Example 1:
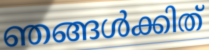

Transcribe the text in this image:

ഞങ്ങൾക്കിത്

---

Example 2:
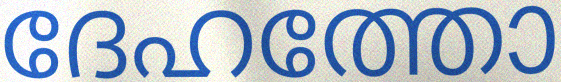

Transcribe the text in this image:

ദേഹത്തോ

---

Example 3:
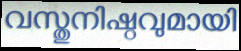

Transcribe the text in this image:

വസ്തുനിഷ്ഠവുമായി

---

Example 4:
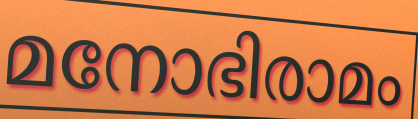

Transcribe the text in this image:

മനോഭിരാമം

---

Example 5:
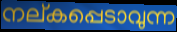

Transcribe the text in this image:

നല്കപ്പെടാവുന്ന